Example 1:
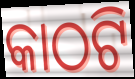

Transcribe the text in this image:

କାଠଟି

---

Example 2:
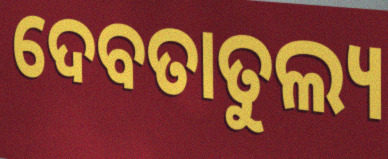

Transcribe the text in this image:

ଦେବତାତୁଲ୍ୟ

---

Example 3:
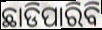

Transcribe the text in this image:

ଛାଡିପାରିବି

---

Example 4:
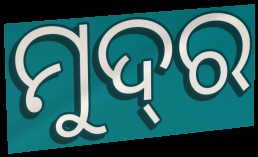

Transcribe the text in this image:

ମୁଦ୍‌ର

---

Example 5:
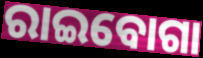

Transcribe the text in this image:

ରାଇବୋଗା